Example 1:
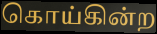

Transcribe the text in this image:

கொய்கின்ற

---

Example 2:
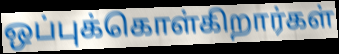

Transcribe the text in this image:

ஒப்புக்கொள்கிறார்கள்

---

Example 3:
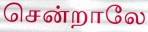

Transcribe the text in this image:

சென்றாலே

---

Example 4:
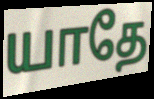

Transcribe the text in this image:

யாதே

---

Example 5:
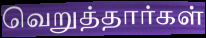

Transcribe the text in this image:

வெறுத்தார்கள்